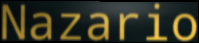
Nazario